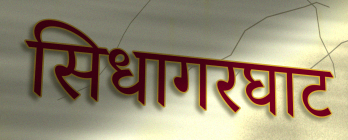
सिधागरघाट